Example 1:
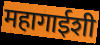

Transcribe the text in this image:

महागाईशी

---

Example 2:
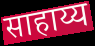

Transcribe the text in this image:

साहाय्य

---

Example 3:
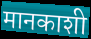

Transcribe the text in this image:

मानकाशी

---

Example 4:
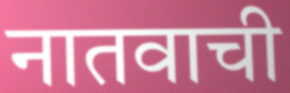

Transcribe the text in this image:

नातवाची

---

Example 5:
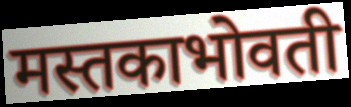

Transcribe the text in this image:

मस्तकाभोवती